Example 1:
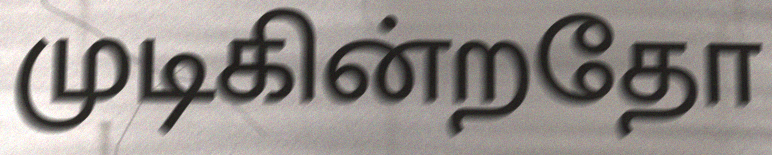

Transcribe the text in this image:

முடிகின்றதோ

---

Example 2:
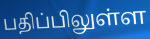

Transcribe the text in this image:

பதிப்பிலுள்ள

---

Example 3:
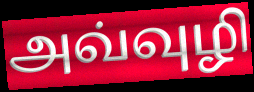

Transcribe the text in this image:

அவ்வுழி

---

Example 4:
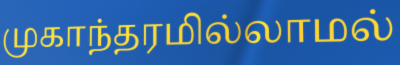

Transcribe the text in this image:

முகாந்தரமில்லாமல்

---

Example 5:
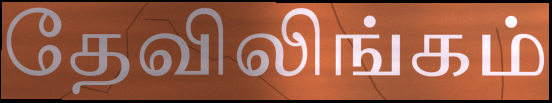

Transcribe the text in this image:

தேவிலிங்கம்